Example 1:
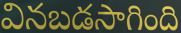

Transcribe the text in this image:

వినబడసాగింది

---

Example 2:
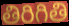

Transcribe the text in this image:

తిరిగితి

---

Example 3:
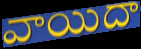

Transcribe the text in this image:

వాయిదా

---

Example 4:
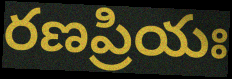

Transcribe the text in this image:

రణప్రియః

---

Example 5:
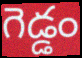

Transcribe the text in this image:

గెడ్డం